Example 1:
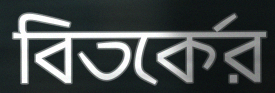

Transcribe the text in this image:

বিতর্কের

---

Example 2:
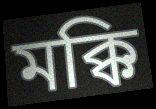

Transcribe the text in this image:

মক্কি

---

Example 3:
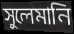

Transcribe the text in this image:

সুলেমানি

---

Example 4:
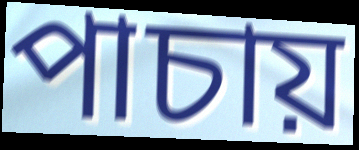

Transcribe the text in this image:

পাচায়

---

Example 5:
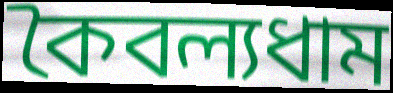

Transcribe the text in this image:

কৈবল্যধাম